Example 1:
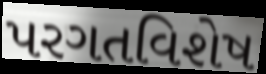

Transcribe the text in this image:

પરગતવિશેષ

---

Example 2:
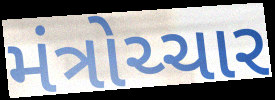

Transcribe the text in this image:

મંત્રોચ્ચાર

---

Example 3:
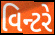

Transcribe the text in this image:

વિન્ટરે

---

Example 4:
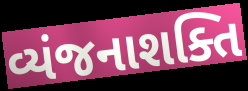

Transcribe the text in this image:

વ્યંજનાશક્તિ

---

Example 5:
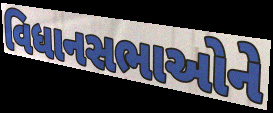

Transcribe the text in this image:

વિધાનસભાઓને